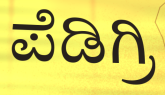
ಪೆಡಿಗ್ರಿ